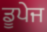
ਡੂਪੇਜ